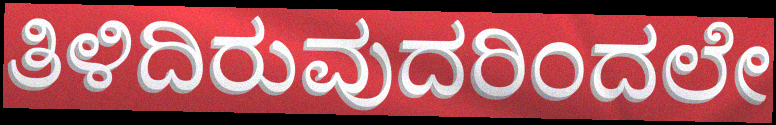
ತಿಳಿದಿರುವುದರಿಂದಲೇ